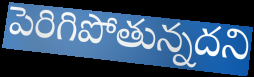
పెరిగిపోతున్నదని